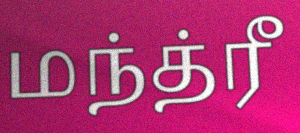
மந்த்ரீ